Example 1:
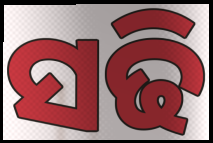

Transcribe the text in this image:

ସଢି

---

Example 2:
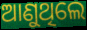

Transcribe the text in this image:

ଆଣୁଥିଲେ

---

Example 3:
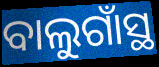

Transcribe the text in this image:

ବାଲୁଗାଁସ୍ଥ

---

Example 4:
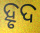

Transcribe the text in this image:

ହୃଦ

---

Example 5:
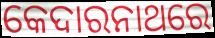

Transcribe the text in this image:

କେଦାରନାଥରେ